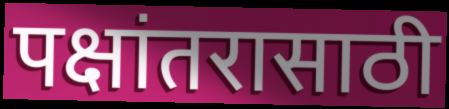
पक्षांतरासाठी